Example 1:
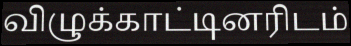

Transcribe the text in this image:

விழுக்காட்டினரிடம்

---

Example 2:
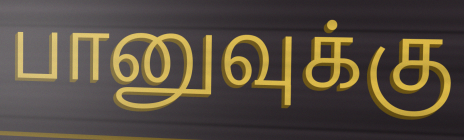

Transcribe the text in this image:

பானுவுக்கு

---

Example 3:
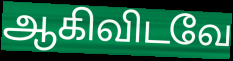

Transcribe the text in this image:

ஆகிவிடவே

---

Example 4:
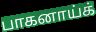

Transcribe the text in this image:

பாகனாய்க்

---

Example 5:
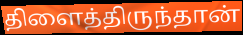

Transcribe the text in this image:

திளைத்திருந்தான்